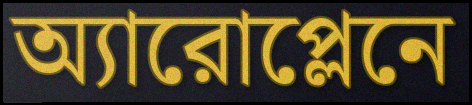
অ্যারোপ্লেনে